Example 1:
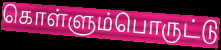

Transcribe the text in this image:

கொள்ளும்பொருட்டு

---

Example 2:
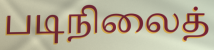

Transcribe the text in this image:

படிநிலைத்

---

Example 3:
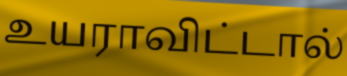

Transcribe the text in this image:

உயராவிட்டால்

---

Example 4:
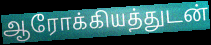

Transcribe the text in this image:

ஆரோக்கியத்துடன்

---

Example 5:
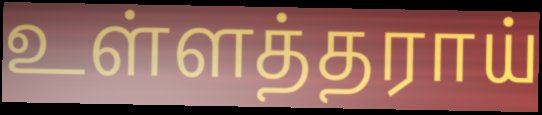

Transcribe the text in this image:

உள்ளத்தராய்